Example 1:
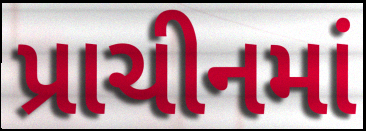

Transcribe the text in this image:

પ્રાચીનમાં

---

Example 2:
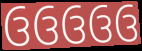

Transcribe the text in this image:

ઉઉઉઉઉ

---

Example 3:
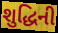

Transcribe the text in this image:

શુદ્ધિની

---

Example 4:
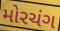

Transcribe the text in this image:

મોરચંગ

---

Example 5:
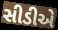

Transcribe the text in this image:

સીડીએ